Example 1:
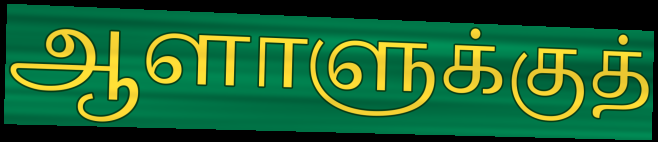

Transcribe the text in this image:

ஆளாளுக்குத்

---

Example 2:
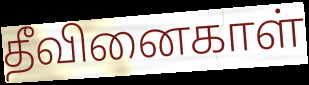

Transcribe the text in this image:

தீவினைகாள்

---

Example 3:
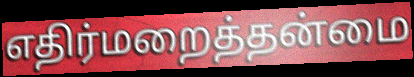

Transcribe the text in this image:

எதிர்மறைத்தன்மை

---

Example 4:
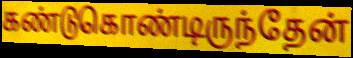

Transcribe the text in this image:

கண்டுகொண்டிருந்தேன்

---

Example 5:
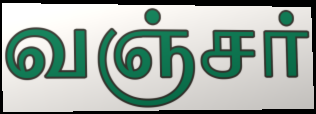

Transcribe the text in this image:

வஞ்சர்